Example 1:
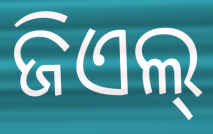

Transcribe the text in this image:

ଜିଏଲ୍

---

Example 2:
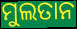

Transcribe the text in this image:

ମୁଲତାନ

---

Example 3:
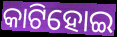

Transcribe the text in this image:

କାଟିହୋଇ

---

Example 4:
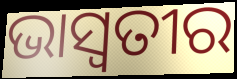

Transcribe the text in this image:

ଭାସ୍ୱତୀର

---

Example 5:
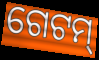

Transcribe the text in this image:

ଗେଟମ୍